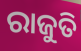
ରାଜୁତି